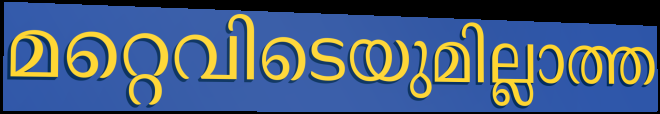
മറ്റെവിടെയുമില്ലാത്ത